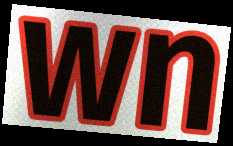
wn